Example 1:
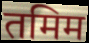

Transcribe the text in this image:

तमिम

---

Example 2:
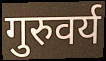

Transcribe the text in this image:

गुरुवर्य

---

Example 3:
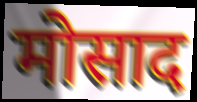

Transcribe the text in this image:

मोसाद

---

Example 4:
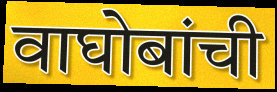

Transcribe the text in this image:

वाघोबांची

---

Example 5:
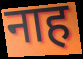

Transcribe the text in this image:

नाह